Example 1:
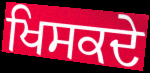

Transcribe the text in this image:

ਖਿਸਕਦੇ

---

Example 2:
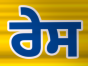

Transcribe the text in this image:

ਰੇਸ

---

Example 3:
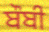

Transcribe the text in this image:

ਬੌਬੀ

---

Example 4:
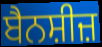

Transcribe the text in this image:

ਬੈਨਸ਼ੀਜ਼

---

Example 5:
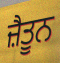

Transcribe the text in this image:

ਜ਼ੈਤੂਨ